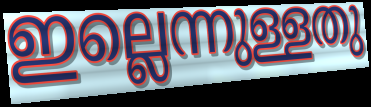
ഇല്ലെന്നുള്ളതു